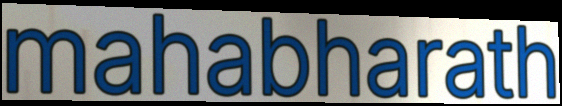
mahabharath